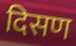
दिसण